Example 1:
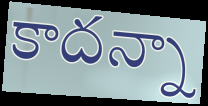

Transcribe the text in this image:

కాదన్నా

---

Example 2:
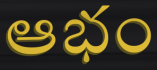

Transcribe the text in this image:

ఆభం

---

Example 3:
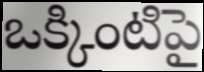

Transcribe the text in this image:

ఒక్కింటిపై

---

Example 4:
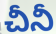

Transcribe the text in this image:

చీనీ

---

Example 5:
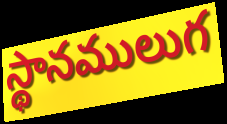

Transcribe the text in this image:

స్థానములుగ